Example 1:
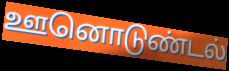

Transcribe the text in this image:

ஊனொடுண்டல்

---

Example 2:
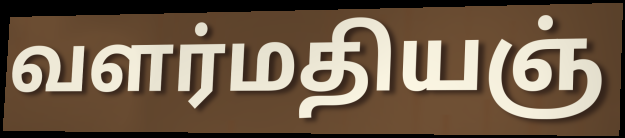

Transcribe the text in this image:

வளர்மதியஞ்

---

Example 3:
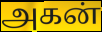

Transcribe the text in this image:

அகன்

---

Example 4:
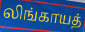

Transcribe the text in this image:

லிங்காயத்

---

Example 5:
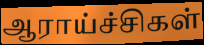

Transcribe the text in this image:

ஆராய்ச்சிகள்